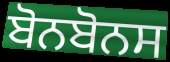
ਬੋਨਬੋਨਸ